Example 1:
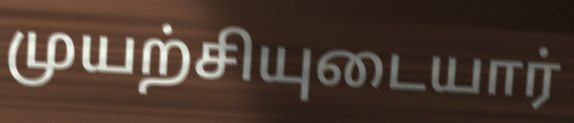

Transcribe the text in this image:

முயற்சியுடையார்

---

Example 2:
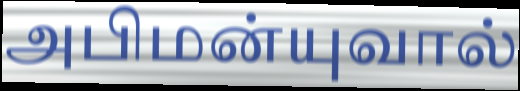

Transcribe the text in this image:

அபிமன்யுவால்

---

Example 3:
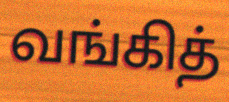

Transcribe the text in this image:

வங்கித்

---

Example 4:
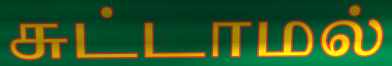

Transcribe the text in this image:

சுட்டாமல்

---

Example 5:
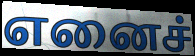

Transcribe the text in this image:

எனைச்